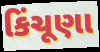
કિંચૂણા